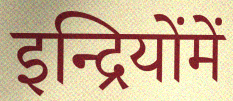
इन्द्रियोंमें